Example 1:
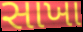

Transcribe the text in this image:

સાખા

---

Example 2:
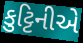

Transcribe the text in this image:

કુટ્ટિનીએ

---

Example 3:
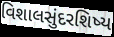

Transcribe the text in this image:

વિશાલસુંદરશિષ્ય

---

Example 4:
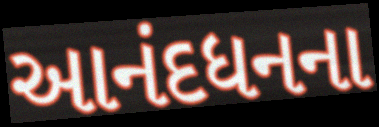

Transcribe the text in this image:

આનંદધનના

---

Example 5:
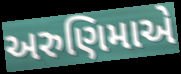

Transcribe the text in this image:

અરુણિમાએ